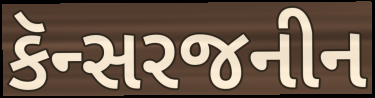
કૅન્સરજનીન